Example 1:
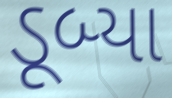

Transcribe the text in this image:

ડૂબ્યા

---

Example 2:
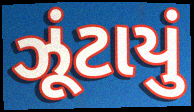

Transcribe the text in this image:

ઝૂંટાયું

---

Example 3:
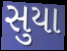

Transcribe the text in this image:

સુયા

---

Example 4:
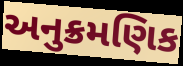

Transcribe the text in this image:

અનુક્રમણિક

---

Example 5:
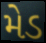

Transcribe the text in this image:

મેડ